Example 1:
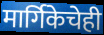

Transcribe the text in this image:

मार्गिकेचेही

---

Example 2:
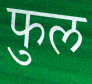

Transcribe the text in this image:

फुल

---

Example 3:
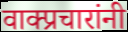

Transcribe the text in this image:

वाक्प्रचारांनी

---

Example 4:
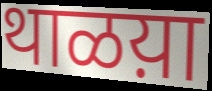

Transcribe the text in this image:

थाळय़ा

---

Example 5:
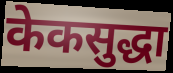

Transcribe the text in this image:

केकसुद्धा